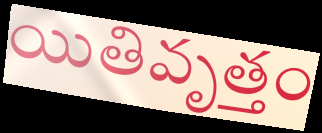
యితివృత్తం